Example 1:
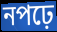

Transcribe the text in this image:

নপঢ়ে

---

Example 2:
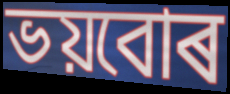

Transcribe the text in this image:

ভয়বোৰ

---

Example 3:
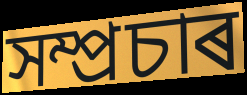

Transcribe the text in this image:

সম্প্ৰচাৰ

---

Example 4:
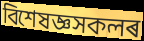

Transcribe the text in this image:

বিশেষজ্ঞসকলৰ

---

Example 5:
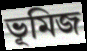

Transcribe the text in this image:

ভূমিজ